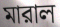
মারাল